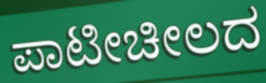
ಪಾಟೀಚೀಲದ